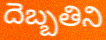
దెబ్బతిని